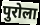
पुरोला